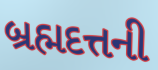
બ્રહ્મદત્તની